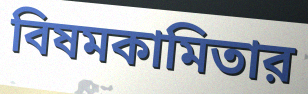
বিষমকামিতার